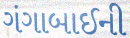
ગંગાબાઈની